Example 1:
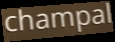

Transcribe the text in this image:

champal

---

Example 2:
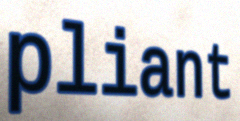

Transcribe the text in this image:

pliant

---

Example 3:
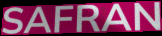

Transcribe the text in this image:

SAFRAN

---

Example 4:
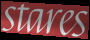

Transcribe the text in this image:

stares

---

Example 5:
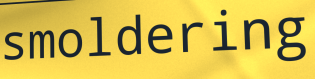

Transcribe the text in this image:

smoldering